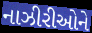
નાઝીરીઓને